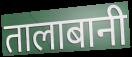
तालाबानी